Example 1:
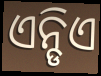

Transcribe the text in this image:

ଏନ୍ଡିଏ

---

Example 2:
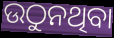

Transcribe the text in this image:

ଉଠୁନଥିବା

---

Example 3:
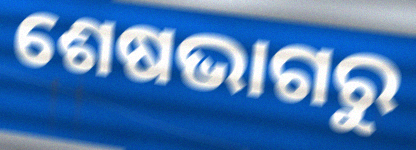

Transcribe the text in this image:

ଶେଷଭାଗରୁ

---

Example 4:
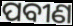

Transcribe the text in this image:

ପବୀଣ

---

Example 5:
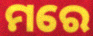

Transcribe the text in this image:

ମରେ